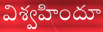
విశ్వహిందూ